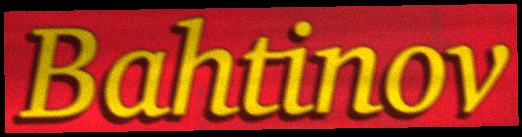
Bahtinov